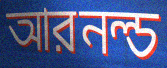
আরনল্ড